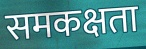
समकक्षता